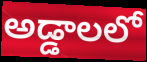
అడ్డాలలో